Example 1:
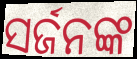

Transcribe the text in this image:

ସର୍ଜନଙ୍କ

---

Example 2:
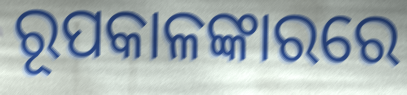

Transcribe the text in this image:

ରୂପକାଳଙ୍କାରରେ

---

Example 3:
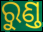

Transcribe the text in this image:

ରୁଣ୍ଡ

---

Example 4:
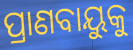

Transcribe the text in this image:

ପ୍ରାଣବାୟୁକୁ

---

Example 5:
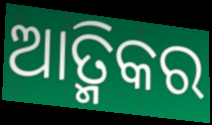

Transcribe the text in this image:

ଆତ୍ମିକର